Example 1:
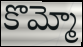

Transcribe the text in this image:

కొమ్మో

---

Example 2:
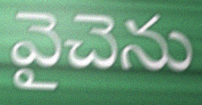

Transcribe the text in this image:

వైచెను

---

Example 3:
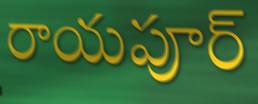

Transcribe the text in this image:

రాయపూర్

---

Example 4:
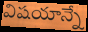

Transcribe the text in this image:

విషయాన్నే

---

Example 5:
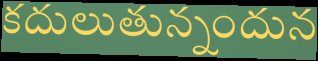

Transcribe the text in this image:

కదులుతున్నందున